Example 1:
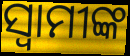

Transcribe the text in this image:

ସ୍ବାମୀଙ୍କ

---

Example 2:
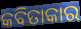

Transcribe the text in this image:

କବିତାକାର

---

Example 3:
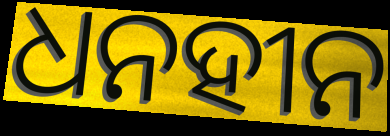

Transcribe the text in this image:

ଧନହୀନ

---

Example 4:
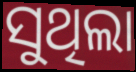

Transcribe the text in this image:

ସୁଥିଲା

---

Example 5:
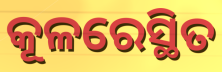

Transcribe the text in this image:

କୂଳରେସ୍ଥିତ